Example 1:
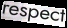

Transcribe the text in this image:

respect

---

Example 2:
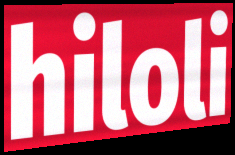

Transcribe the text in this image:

hiloli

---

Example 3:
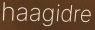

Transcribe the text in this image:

haagidre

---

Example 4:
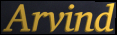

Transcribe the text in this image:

Arvind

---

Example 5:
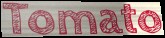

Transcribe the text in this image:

Tomato